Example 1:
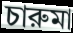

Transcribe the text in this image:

চারুমা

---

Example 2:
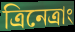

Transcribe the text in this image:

ত্রিনেত্রাং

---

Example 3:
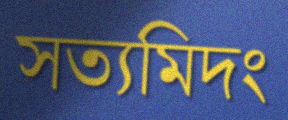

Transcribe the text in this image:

সত্যমিদং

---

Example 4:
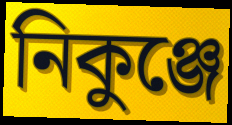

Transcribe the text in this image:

নিকুঞ্জে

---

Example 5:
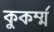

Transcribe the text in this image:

কুকর্ম্ম